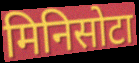
मिनिसोटा